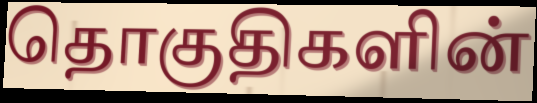
தொகுதிகளின்